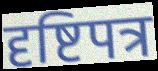
दृष्टिपत्र